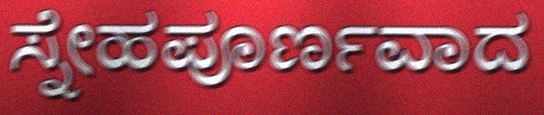
ಸ್ನೇಹಪೂರ್ಣವಾದ